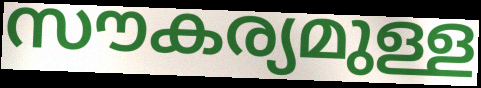
സൗകര്യമുള്ള